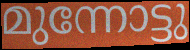
മുന്നോട്ടു